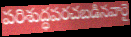
పరిశుద్ధపరచబడినవారై